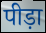
पीड़ा